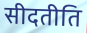
सीदतीति